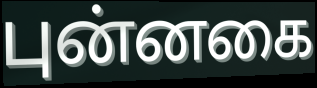
புன்னகை